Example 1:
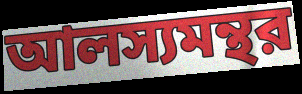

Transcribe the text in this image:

আলস্যমন্থর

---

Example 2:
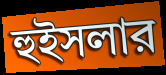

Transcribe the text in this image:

হুইসলার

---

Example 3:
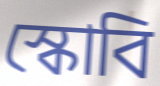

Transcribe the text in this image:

স্কোবি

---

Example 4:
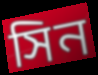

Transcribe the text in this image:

সিন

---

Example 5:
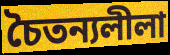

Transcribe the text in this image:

চৈতন্যলীলা